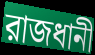
রাজধানী